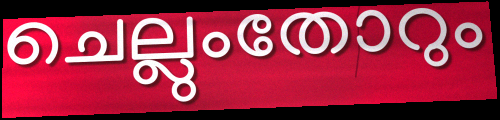
ചെല്ലുംതോറും